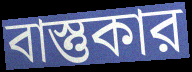
বাস্তুকার